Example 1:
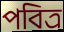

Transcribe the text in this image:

পবিত্ৰ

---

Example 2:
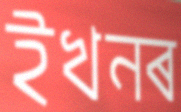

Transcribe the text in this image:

ইখনৰ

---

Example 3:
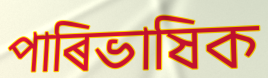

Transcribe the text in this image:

পাৰিভাষিক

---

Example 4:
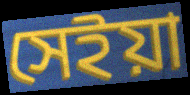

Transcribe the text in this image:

সেইয়া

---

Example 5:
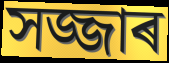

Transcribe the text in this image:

সজ্জাৰ